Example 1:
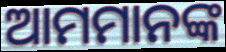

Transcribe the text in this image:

ଆମମାନଙ୍କ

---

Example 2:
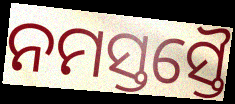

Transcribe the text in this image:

ନମସ୍ତସ୍ତୈ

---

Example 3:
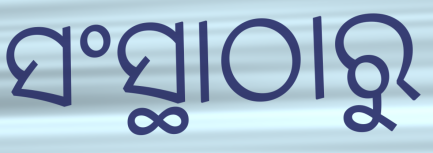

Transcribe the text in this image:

ସଂସ୍ଥାଠାରୁ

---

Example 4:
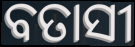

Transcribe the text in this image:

ବତାସୀ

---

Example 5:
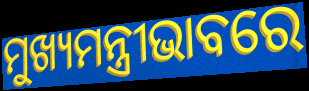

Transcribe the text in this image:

ମୁଖ୍ୟମନ୍ତ୍ରୀଭାବରେ